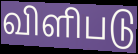
விளிபடு